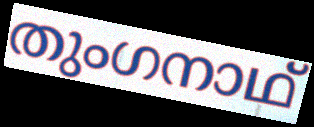
തുംഗനാഥ്